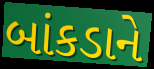
બાંકડાને